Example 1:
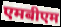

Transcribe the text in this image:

एमबीएम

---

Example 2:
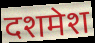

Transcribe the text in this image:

दशमेश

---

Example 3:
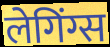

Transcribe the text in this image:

लेगिंग्स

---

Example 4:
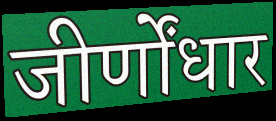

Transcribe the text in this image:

जीर्णोंधार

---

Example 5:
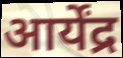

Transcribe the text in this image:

आर्येंद्र